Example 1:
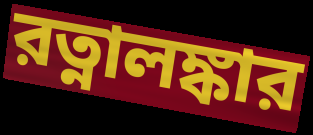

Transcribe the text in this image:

রত্নালঙ্কার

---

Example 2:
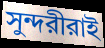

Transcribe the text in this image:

সুন্দরীরাই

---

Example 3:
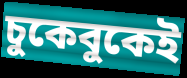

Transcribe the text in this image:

চুকেবুকেই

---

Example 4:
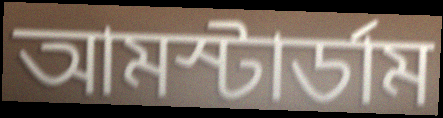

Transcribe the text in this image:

আমস্টার্ডাম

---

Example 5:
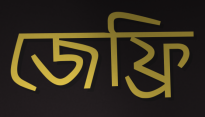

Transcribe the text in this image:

জেফ্রি